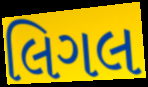
લિગલ